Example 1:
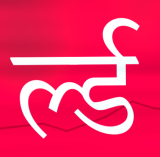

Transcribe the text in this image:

र्ल्ड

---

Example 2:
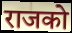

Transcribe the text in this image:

राजको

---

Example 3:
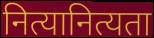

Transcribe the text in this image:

नित्यानित्यता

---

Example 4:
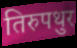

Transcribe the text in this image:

तिरुपथुर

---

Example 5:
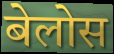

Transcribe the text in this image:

बेलोस